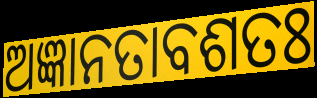
ଅଜ୍ଞାନତାବଶତଃ